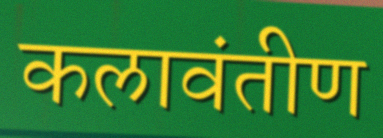
कलावंतीण